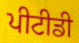
ਪੀਟੀਡੀ